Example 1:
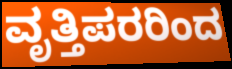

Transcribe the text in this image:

ವೃತ್ತಿಪರರಿಂದ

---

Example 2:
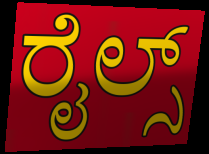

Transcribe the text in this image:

ರೈಲ್ಸ್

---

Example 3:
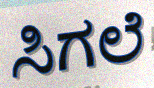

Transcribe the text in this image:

ಸಿಗಲೆ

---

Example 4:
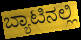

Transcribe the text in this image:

ಬ್ಯಾಟಿನಲ್ಲಿ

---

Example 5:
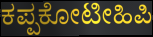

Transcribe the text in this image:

ಕಪ್ಪಕೋಟೀಹಿಪಿ